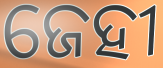
ଜେହୀ